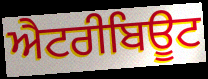
ਐਟਰੀਬਿਊਟ